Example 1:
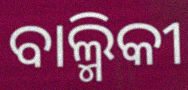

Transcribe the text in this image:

ବାଲ୍ମିକୀ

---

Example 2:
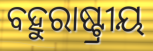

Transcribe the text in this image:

ବହୁରାଷ୍ଟ୍ରୀୟ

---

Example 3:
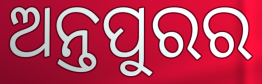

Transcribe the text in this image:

ଅନ୍ତପୁରର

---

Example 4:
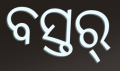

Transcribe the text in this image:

ବସ୍ତର୍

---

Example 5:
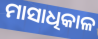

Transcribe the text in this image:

ମାସାଧିକାଳ